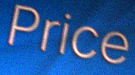
Price